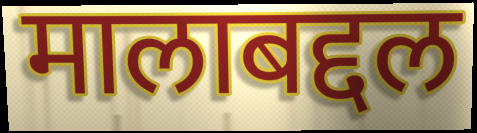
मालाबद्दल